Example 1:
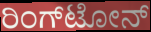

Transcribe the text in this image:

ರಿಂಗ್‌ಟೋನ್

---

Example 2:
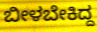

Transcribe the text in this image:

ಬೀಳಬೇಕಿದ್ದ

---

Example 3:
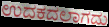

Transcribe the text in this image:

ಉದಕದಲಾಗದು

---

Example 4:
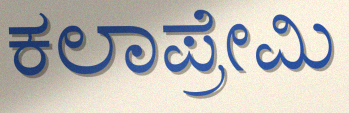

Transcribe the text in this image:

ಕಲಾಪ್ರೇಮಿ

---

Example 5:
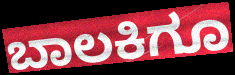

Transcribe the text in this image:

ಬಾಲಕಿಗೂ